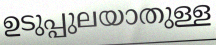
ഉടുപ്പുലയാതുള്ള